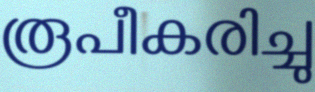
രൂപീകരിച്ചു